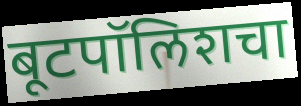
बूटपॉलिशचा